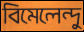
বিমেলেন্দু